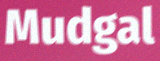
Mudgal